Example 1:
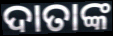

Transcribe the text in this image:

ଦାତାଙ୍କ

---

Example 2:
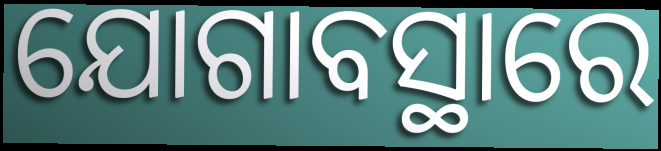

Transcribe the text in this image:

ଯୋଗାବସ୍ଥାରେ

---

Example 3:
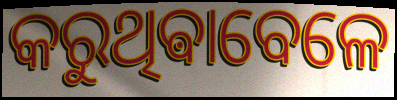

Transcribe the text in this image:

କରୁଥିଵାବେଳେ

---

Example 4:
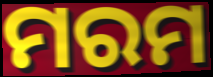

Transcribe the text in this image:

ମରମ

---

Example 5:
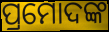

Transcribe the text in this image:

ପ୍ରମୋଦଙ୍କ